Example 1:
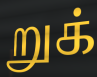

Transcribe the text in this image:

றுக்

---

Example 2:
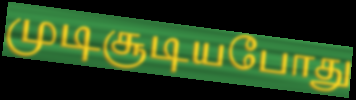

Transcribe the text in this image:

முடிசூடியபோது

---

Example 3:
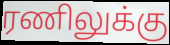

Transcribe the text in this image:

ரணிலுக்கு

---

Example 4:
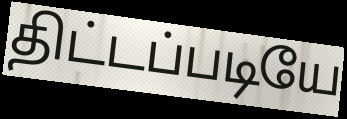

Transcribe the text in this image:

திட்டப்படியே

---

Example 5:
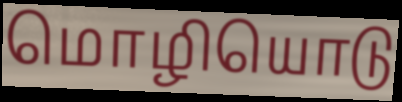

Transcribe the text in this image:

மொழியொடு